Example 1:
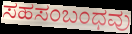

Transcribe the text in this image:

ಸಹಸಂಬಂಧವು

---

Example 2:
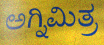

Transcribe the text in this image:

ಅಗ್ನಿಮಿತ್ರ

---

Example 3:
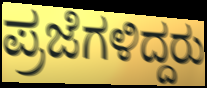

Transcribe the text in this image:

ಪ್ರಜೆಗಳಿದ್ದರು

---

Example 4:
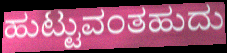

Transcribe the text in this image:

ಹುಟ್ಟುವಂತಹುದು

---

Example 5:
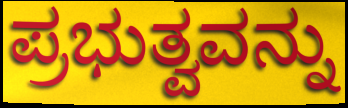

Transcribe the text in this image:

ಪ್ರಭುತ್ವವನ್ನು